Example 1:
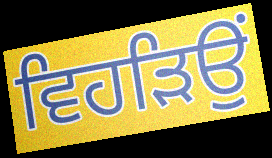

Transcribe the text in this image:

ਵਿਹੜਿਉਂ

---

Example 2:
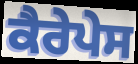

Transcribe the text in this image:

ਕੈਰੇਪੇਸ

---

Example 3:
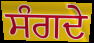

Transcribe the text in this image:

ਸੰਗਦੇ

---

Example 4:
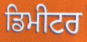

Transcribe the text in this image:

ਡਿਮੀਟਰ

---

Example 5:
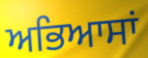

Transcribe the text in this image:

ਅਭਿਆਸਾਂ